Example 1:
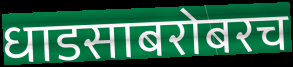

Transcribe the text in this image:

धाडसाबरोबरच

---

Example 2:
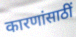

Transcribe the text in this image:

कारणांसाठीं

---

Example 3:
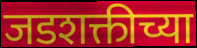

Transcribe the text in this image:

जडशक्तीच्या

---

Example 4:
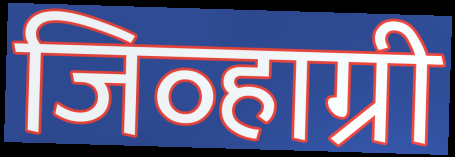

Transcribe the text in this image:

जिव्हाग्री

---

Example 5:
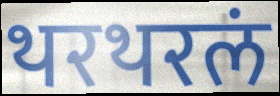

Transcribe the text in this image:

थरथरलं